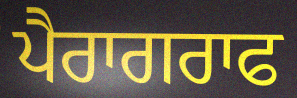
ਪੈਰਾਗਰਾਫ